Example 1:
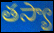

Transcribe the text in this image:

తస్యా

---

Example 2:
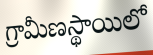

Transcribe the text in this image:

గ్రామీణస్థాయిలో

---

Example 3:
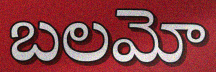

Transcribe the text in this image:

బలమో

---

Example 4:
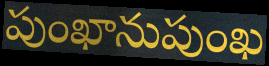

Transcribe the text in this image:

పుంఖానుపుంఖ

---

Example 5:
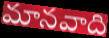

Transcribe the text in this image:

మానవాది